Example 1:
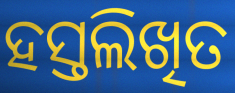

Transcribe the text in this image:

ହସ୍ତଲିଖିତ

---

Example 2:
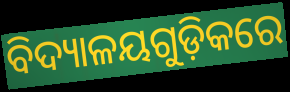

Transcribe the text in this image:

ବିଦ୍ୟାଳୟଗୁଡ଼ିକରେ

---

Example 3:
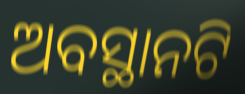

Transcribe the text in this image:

ଅବସ୍ଥାନଟି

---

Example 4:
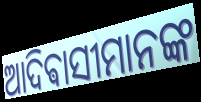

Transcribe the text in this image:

ଆଦିଵାସୀମାନଙ୍କ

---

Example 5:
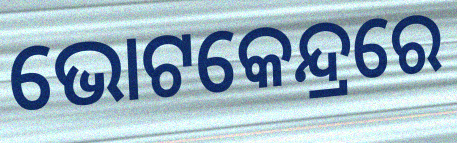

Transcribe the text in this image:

ଭୋଟକେନ୍ଦ୍ରରେ